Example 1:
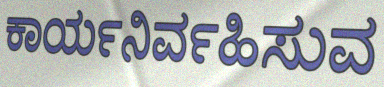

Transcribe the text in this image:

ಕಾರ್ಯನಿರ್ವಹಿಸುವ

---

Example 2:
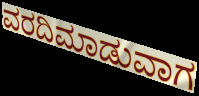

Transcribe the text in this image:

ವರದಿಮಾಡುವಾಗ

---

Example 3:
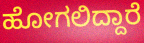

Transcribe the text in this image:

ಹೋಗಲಿದ್ದಾರೆ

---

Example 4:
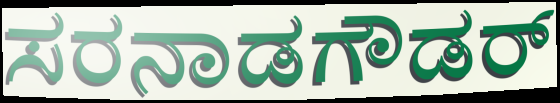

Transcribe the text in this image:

ಸರನಾಡಗೌಡರ್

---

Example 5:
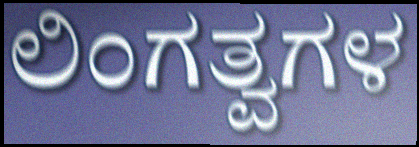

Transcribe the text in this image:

ಲಿಂಗತ್ವಗಳ